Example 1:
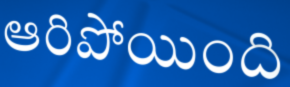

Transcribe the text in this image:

ఆరిపోయింది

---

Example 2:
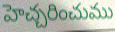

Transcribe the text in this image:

హెచ్చరించుము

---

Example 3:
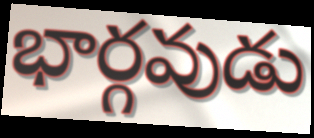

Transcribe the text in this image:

భార్గవుడు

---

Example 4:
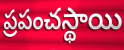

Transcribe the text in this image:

ప్రపంచస్థాయి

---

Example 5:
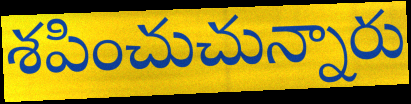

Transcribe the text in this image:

శపించుచున్నారు